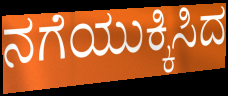
ನಗೆಯುಕ್ಕಿಸಿದ